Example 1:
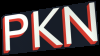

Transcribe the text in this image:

PKN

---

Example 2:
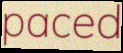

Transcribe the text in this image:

paced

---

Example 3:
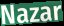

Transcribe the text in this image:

Nazar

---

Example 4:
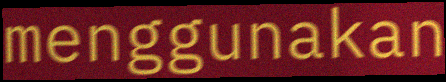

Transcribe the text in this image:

menggunakan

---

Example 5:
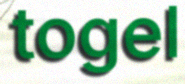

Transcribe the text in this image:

togel